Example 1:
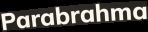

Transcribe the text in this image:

Parabrahma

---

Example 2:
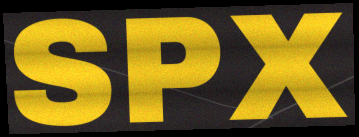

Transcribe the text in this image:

SPX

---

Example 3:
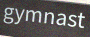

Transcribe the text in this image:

gymnast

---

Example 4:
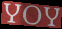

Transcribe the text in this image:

YOY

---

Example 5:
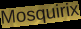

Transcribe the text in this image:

Mosquirix